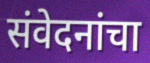
संवेदनांचा